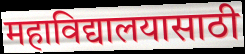
महाविद्यालयासाठी